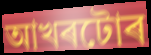
আখৰটোৰ